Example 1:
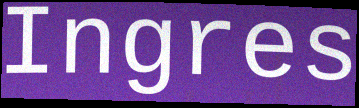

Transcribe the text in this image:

Ingres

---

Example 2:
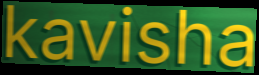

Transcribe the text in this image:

kavisha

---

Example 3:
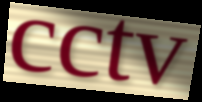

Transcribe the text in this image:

cctv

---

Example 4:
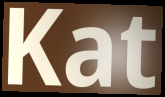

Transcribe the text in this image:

Kat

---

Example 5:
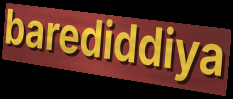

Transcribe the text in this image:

barediddiya